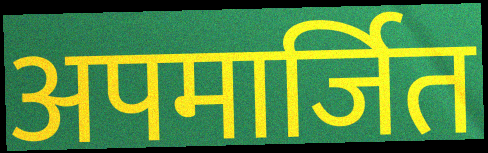
अपमार्जित